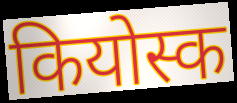
कियोस्क